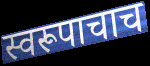
स्वरूपाचाच